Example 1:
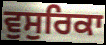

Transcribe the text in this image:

ਵੁਸੁਰਿਕਾ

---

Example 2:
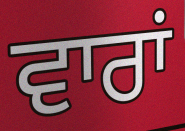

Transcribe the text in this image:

ਵਾਰਾਂ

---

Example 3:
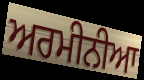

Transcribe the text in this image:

ਅਰਮੀਨੀਆ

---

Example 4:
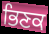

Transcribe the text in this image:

ਭਿਣਕ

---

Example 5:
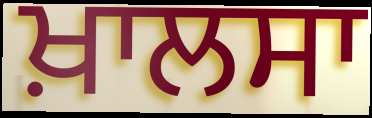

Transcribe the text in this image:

ਖ਼ਾਲਸਾ